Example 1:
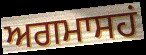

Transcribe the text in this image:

ਅਗਮਾਸਹਂ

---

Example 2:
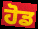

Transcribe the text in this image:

ਹੋਡ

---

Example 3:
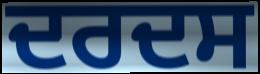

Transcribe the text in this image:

ਦਰਦਸ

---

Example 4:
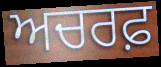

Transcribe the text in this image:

ਅਚਰਫ਼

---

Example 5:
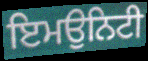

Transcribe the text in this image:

ਇਮਉਨਿਟੀ